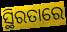
ସ୍ଥିରତାରେ